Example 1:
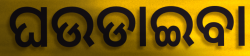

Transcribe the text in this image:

ଘଉଡାଇବା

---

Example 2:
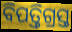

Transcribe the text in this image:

ବିପତ୍ତିଗ୍ରସ୍ତ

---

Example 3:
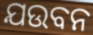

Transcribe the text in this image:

ଯଉବନ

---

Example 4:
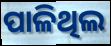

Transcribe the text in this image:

ପାଳିଥିଲ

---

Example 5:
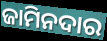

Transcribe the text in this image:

ଜାମିନଦାର